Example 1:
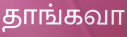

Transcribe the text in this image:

தாங்கவா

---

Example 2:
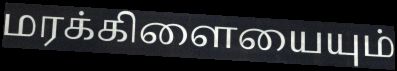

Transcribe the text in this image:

மரக்கிளையையும்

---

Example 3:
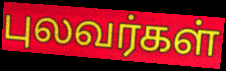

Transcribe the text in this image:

புலவர்கள்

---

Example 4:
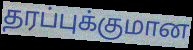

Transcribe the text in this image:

தரப்புக்குமான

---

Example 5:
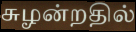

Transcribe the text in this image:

சுழன்றதில்